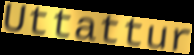
Uttattur